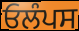
ਓਲੰਪਸ